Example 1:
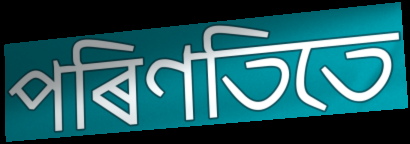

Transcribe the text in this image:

পৰিণতিতে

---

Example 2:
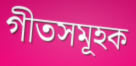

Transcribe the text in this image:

গীতসমূহক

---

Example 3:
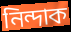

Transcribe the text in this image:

নিন্দাক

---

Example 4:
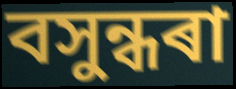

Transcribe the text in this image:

বসুন্ধৰা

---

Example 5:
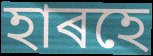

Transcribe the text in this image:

হাৰহে